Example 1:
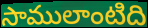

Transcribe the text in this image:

సాములాంటిది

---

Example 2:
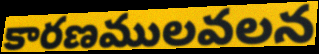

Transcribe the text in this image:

కారణములవలన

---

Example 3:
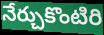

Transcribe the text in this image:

నేర్చుకొంటిరి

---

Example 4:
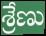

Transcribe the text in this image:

శ్రేణు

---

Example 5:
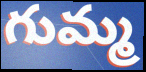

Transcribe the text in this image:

గుమ్మ